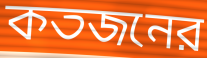
কতজনের